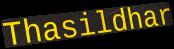
Thasildhar